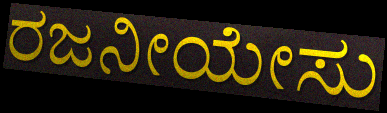
ರಜನೀಯೇಸು